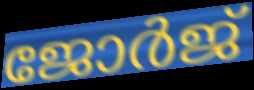
ജോർജ്